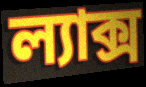
ল্যাক্স